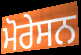
ਮੋਰੇਸਨ